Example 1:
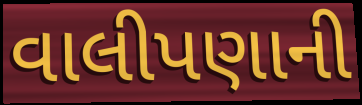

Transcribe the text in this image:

વાલીપણાની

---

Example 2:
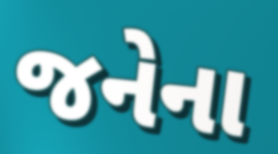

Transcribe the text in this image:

જનેના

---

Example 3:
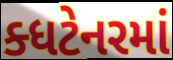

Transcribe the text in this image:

ક્ધટેનરમાં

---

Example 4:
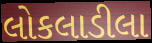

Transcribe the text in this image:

લોકલાડીલા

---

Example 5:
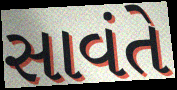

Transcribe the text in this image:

સાવંતે